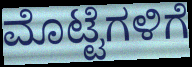
ಮೊಟ್ಟೆಗಳಿಗೆ